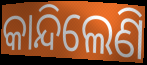
କାନ୍ଦିଲେଣି